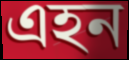
এহন